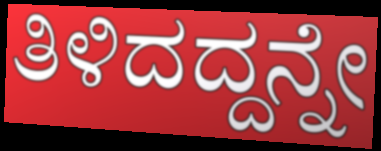
ತಿಳಿದದ್ದನ್ನೇ